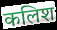
कलिश